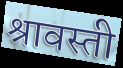
श्रावस्ती